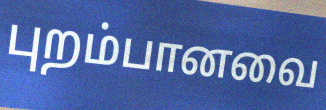
புறம்பானவை